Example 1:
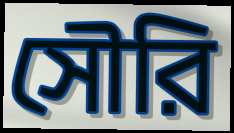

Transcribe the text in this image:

সৌরি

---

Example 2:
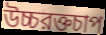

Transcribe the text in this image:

উচ্চরক্তচাপ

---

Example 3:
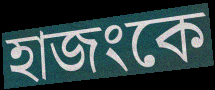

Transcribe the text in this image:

হাজংকে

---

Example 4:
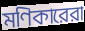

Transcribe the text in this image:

মণিকারেরা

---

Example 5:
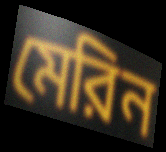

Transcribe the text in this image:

মেরিন